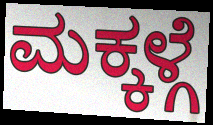
ಮಕ್ಕಳ್ಗೆ